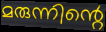
മരുന്നിന്റെ